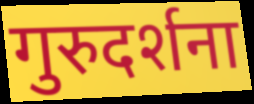
गुरुदर्शना